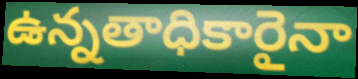
ఉన్నతాధికారైనా